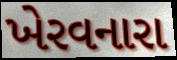
ખેરવનારા